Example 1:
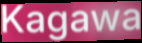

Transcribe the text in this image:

Kagawa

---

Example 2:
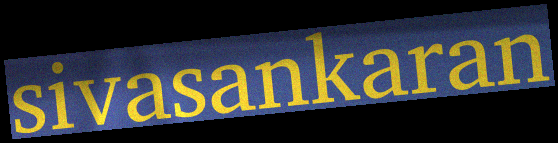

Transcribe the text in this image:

sivasankaran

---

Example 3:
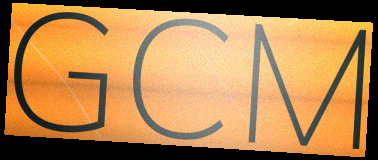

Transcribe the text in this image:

GCM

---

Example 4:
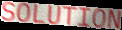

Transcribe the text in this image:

SOLUTION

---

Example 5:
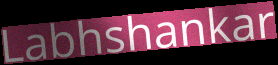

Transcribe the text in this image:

Labhshankar